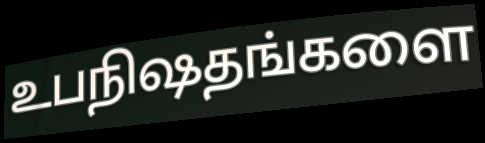
உபநிஷதங்களை